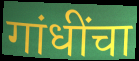
गांधींचा